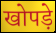
खोपड़े